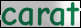
carat